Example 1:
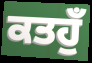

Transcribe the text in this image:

ਕਤਹੁਁ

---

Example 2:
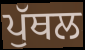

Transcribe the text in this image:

ਪੁੱਥਲ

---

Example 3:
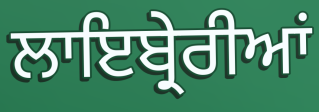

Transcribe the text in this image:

ਲਾਇਬ੍ਰੇਰੀਆਂ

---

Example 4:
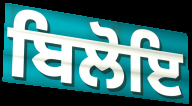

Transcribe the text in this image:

ਬਿਲੋਇ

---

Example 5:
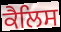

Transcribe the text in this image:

ਕੈਲਿਸ